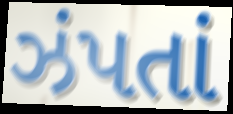
ઝંપતાં